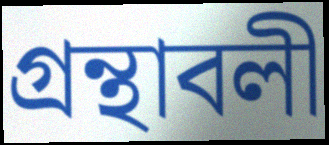
গ্রন্থাবলী